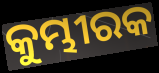
କୁମ୍ଭୀରକ